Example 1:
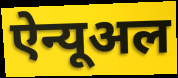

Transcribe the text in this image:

ऐन्यूअल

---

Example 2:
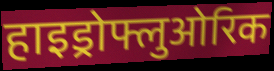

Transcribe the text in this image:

हाइड्रोफ्लुओरिक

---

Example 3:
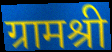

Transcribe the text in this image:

ग्रामश्री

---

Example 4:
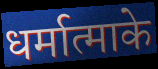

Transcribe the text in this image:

धर्मात्माके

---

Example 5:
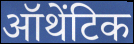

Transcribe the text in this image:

ऑथेंटिक